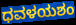
ಧವಳಯಶಂ